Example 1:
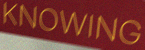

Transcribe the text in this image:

KNOWING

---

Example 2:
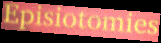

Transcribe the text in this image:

Episiotomies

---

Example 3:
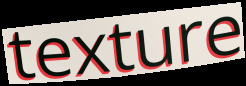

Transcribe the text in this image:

texture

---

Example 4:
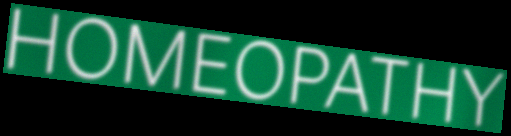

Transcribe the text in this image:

HOMEOPATHY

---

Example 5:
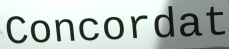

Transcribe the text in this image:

Concordat